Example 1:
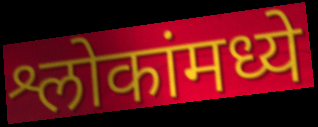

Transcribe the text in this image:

श्लोकांमध्ये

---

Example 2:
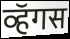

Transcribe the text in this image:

व्हॅगस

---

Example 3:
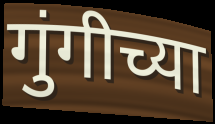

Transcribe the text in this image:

गुंगीच्या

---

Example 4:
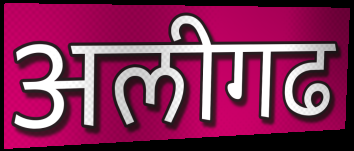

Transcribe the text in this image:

अलीगढ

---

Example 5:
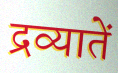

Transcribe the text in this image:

द्रव्यातें